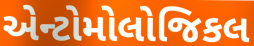
એન્ટોમોલોજિકલ